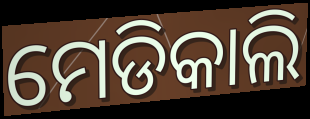
ମେଡିକାଲି